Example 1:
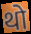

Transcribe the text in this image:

थो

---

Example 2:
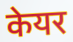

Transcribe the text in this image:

केयर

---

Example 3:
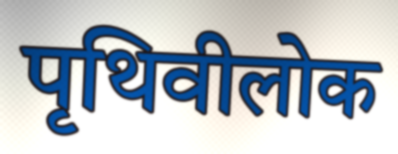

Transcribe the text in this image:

पृथिवीलोक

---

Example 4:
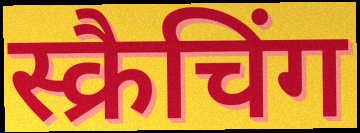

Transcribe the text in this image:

स्क्रैचिंग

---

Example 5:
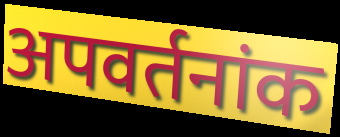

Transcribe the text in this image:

अपवर्तनांक